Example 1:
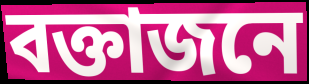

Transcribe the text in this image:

বক্তাজনে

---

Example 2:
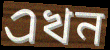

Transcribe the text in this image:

এখন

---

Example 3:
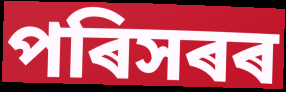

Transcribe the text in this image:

পৰিসৰৰ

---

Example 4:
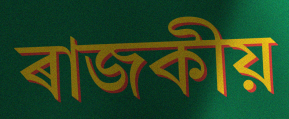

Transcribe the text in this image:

ৰাজকীয়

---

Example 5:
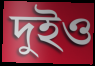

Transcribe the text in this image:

দুইও